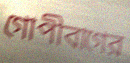
গোপীবাগের